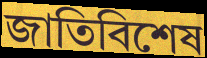
জাতিবিশেষ